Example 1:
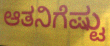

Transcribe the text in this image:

ಆತನಿಗೆಷ್ಟು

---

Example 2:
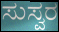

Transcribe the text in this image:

ಸುಸ್ವರ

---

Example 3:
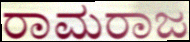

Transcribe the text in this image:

ರಾಮರಾಜ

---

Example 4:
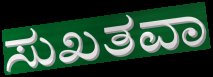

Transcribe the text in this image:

ಸುಖತವಾ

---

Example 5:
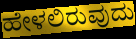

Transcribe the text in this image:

ಹೇಳಲಿರುವುದು